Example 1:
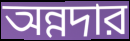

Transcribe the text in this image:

অন্নদার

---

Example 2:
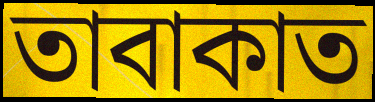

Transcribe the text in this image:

তাবাকাত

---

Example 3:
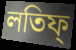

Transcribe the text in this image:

লতিফ্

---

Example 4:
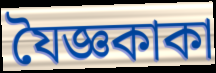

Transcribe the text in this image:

যৈজ্ঞকাকা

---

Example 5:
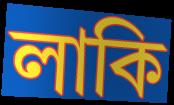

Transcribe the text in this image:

লাকি